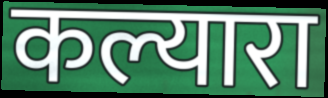
कल्यारा